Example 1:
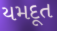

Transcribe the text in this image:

યમદૂત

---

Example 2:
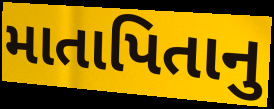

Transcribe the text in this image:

માતાપિતાનુ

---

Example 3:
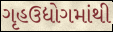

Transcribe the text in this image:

ગૃહઉદ્યોગમાંથી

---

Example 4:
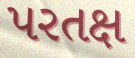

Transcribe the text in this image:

પરતક્ષ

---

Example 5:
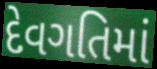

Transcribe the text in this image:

દેવગતિમાં